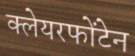
क्लेयरफोंटेन